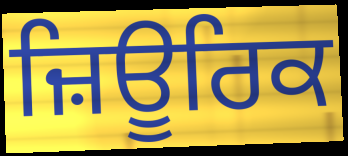
ਜ਼ਿਊਰਿਕ